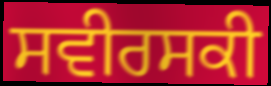
ਸਵੀਰਸਕੀ